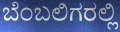
ಬೆಂಬಲಿಗರಲ್ಲಿ